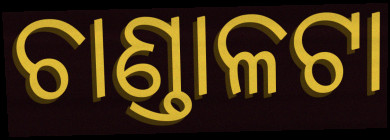
ଚାଣ୍ଡାଳଟା